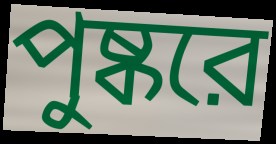
পুষ্করে